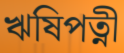
ঋষিপত্নী